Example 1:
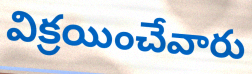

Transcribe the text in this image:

విక్రయించేవారు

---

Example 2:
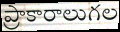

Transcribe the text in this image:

ప్రాకారాలుగల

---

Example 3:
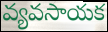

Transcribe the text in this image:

వ్యవసాయక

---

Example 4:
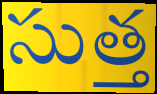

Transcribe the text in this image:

సుత్త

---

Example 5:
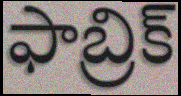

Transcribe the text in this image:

ఫాబ్రిక్